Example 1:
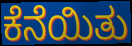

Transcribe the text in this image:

ಕೆನೆಯಿತು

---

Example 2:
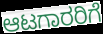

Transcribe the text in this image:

ಆಟಗಾರರಿಗೆ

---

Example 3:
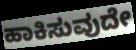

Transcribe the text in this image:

ಹಾಕಿಸುವುದೇ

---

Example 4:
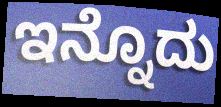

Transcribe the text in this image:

ಇನ್ನೊದು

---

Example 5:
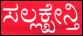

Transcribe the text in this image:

ಸಲ್ಲಕ್ಖೇನ್ತಿ